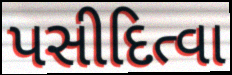
પસીદિત્વા